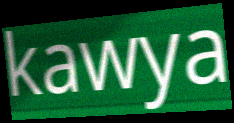
kawya